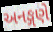
અનઙ્ગણે